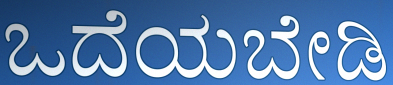
ಒದೆಯಬೇಡಿ